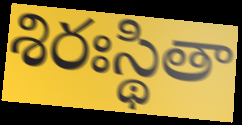
శిరఃస్థితా